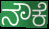
ನೌಕೆ